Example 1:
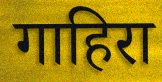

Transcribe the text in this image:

गाहिरा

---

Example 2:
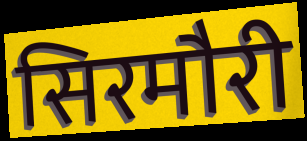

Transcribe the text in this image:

सिरमौरी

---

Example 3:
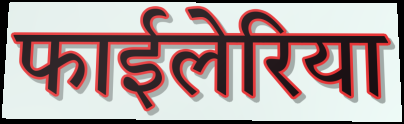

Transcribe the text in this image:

फाईलेरिया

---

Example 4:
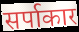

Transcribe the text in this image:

सर्पाकार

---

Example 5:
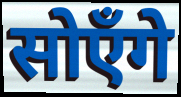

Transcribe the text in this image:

सोएँगे